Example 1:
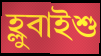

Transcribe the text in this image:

হ্লুবাইশু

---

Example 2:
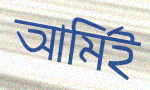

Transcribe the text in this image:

আর্মিই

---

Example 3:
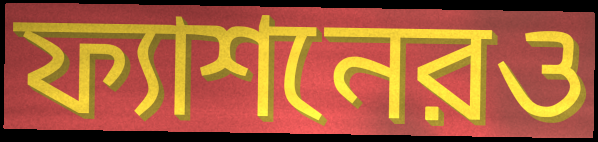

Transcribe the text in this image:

ফ্যাশনেরও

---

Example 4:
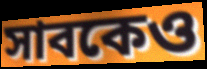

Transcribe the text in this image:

সাবকেও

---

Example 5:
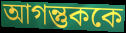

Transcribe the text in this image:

আগন্তুককে